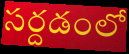
సర్దడంలో